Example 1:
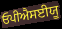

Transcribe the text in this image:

ਓਪੀਐਸਈਯੂ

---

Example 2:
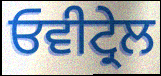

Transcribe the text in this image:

ਓਵੀਟ੍ਰੇਲ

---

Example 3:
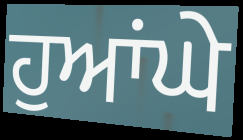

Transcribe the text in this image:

ਹੁਆਂਘੇ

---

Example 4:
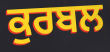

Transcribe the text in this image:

ਕੁਰਬਲ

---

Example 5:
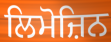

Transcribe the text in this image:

ਲਿਮੋਜ਼ਿਨ